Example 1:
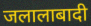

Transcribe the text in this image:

जलालाबादी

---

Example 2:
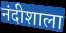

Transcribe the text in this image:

नंदीशाला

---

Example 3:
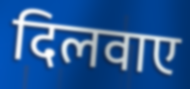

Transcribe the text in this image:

दिलवाए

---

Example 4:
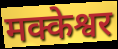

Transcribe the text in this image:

मक्केश्वर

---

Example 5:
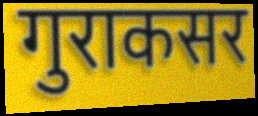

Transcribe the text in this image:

गुराकसर